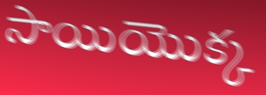
సాయియొక్క